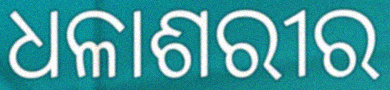
ଧଳାଶରୀର